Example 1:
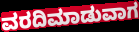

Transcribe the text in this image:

ವರದಿಮಾಡುವಾಗ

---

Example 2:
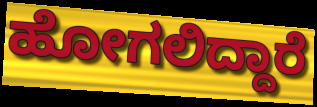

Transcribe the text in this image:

ಹೋಗಲಿದ್ದಾರೆ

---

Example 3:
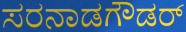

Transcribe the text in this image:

ಸರನಾಡಗೌಡರ್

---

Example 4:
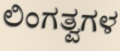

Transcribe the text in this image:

ಲಿಂಗತ್ವಗಳ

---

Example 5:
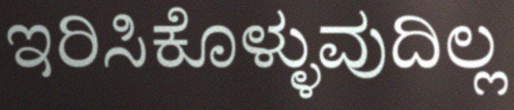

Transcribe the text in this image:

ಇರಿಸಿಕೊಳ್ಳುವುದಿಲ್ಲ